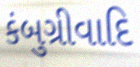
કંબુગ્રીવાદિ